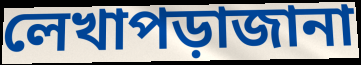
লেখাপড়াজানা